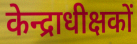
केन्द्राधीक्षकों